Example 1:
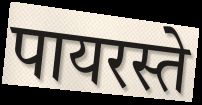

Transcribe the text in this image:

पायरस्ते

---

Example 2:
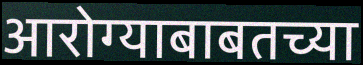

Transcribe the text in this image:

आरोग्याबाबतच्या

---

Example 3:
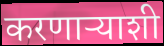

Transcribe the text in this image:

करणाऱ्याशी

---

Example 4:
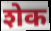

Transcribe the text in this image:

शेक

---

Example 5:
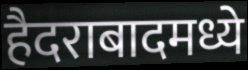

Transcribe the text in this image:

हैदराबादमध्ये